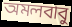
অমলবাবু